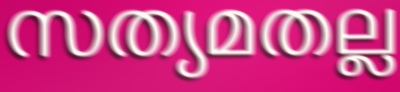
സത്യമതല്ല